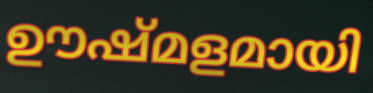
ഊഷ്മളമായി